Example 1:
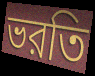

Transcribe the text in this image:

ভরতি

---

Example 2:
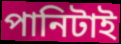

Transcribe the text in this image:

পানিটাই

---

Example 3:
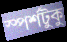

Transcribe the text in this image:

স্পর্শটুকু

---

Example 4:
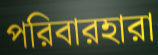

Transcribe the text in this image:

পরিবারহারা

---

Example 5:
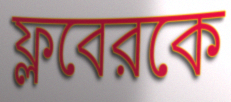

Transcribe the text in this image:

ফ্লবেরকে